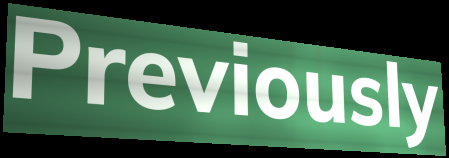
Previously